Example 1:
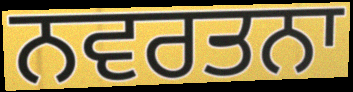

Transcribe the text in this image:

ਨਵਰਤਨਾ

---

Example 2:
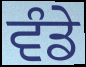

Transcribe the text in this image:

ਵੰਡੇ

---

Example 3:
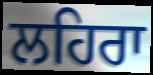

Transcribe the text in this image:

ਲਹਿਰਾ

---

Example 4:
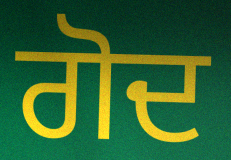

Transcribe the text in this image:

ਗੋਦ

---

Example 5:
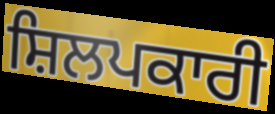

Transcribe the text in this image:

ਸ਼ਿਲਪਕਾਰੀ